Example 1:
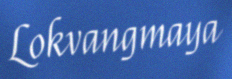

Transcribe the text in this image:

Lokvangmaya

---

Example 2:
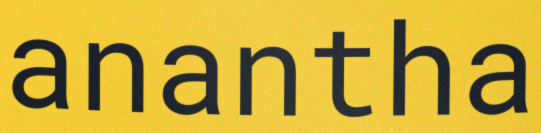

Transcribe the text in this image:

anantha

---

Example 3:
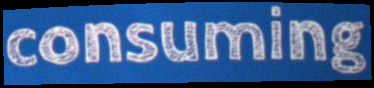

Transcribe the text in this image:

consuming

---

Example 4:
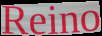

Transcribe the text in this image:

Reino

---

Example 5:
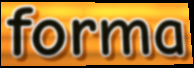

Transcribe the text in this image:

forma